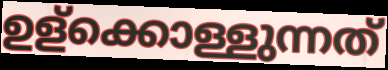
ഉള്ക്കൊള്ളുന്നത്